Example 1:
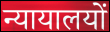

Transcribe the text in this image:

न्यायालयों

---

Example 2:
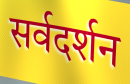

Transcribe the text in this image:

सर्वदर्शन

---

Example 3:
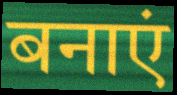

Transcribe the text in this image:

बनाएं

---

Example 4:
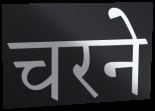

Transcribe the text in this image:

चरने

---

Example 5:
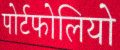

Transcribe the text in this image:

पोर्टफोलियो